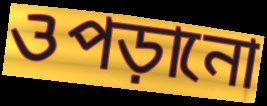
ওপড়ানো